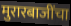
मुरारबाजींचा